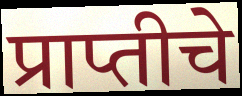
प्राप्तीचे